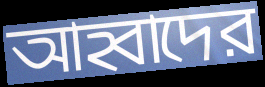
আহ্বাদের